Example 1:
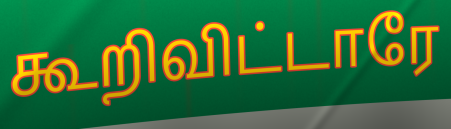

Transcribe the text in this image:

கூறிவிட்டாரே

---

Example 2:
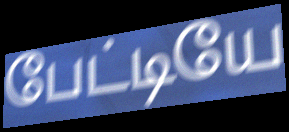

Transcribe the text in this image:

பேட்டியே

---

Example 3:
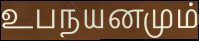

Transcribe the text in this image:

உபநயனமும்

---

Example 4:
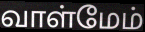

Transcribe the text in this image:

வாள்மேம்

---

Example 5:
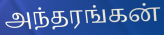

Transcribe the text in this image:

அந்தரங்கன்